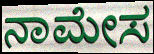
ನಾಮೇಸ